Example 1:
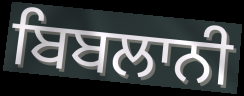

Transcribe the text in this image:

ਬਿਬਲਾਨੀ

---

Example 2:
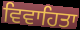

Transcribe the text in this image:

ਵਿਵਾਹਿਤਾ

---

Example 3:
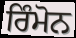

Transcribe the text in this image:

ਰਿੰਮੋਨ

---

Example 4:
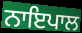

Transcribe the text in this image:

ਨਾਇਪਾਲ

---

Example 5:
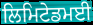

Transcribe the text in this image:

ਲਿਮਿਟੇਡਮਈ